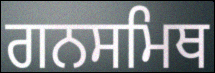
ਗਨਸਮਿਥ